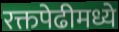
रक्तपेढीमध्ये